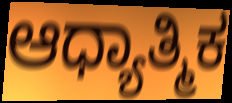
ಆಧ್ಯಾತ್ಮಿಕ